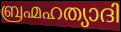
ബ്രഹ്മഹത്യാദി